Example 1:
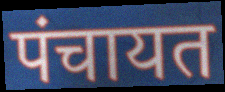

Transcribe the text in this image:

पंचायत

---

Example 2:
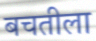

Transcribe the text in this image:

बचतीला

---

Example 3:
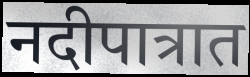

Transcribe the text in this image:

नदीपात्रात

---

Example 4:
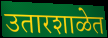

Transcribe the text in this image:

उतारशाळेत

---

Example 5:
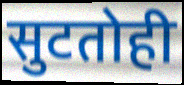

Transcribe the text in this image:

सुटतोही